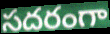
సదరంగా